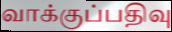
வாக்குப்பதிவு